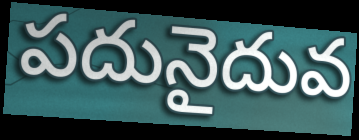
పదునైదువ